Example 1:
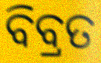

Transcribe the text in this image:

ବିବ୍ରତ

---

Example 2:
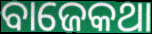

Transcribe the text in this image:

ବାଜେକଥା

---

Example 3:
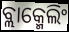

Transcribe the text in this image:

ବ୍ଲାକ୍ମେଲିଂ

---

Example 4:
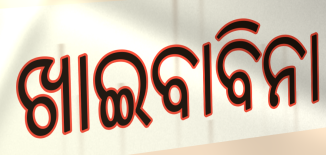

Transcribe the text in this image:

ଖାଇବାବିନା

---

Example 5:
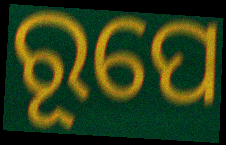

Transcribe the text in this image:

ରୂପେ